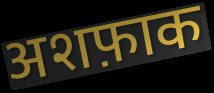
अशफ़ाक